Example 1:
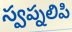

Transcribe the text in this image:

స్వప్నలిపి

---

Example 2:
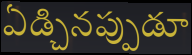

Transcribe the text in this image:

ఏడ్చినప్పుడూ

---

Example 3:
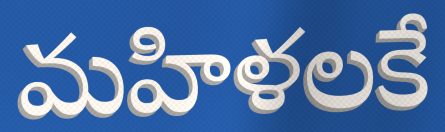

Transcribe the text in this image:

మహిళలకే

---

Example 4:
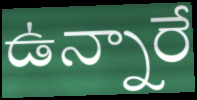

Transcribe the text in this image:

ఉన్నారే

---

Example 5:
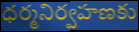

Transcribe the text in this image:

ధర్మనిర్వహణకు